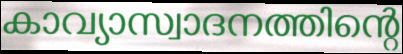
കാവ്യാസ്വാദനത്തിന്റെ